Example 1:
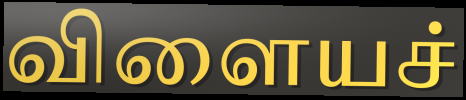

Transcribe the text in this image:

விளையச்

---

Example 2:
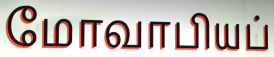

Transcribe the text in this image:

மோவாபியப்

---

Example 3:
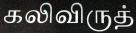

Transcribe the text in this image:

கலிவிருத்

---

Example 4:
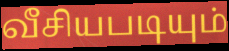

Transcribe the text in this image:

வீசியபடியும்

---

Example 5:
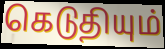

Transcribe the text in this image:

கெடுதியும்